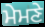
ਮੇਮਣੇ